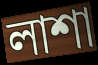
লাশা